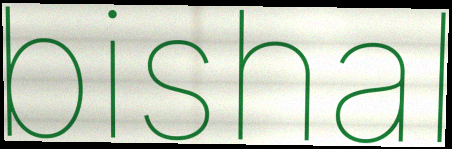
bishal